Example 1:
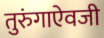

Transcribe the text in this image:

तुरुंगाऐवजी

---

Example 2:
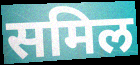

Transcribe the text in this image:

समिल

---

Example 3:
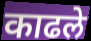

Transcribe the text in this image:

काढले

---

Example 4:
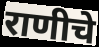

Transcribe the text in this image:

राणीचे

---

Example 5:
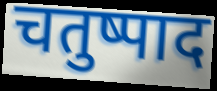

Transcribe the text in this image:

चतुष्पाद